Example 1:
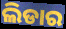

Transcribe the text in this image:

ଲିଡାର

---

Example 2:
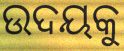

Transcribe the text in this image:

ଉଦୟକୁ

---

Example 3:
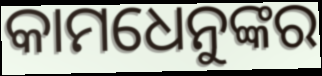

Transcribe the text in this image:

କାମଧେନୁଙ୍କର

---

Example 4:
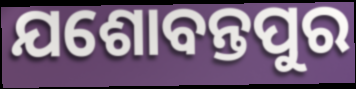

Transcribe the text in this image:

ଯଶୋବନ୍ତପୁର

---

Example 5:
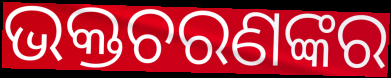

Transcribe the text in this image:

ଭକ୍ତଚରଣଙ୍କର